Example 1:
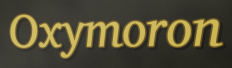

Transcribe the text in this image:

Oxymoron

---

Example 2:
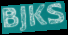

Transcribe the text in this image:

BJKS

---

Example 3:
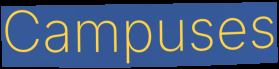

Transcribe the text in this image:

Campuses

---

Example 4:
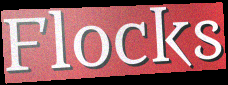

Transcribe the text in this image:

Flocks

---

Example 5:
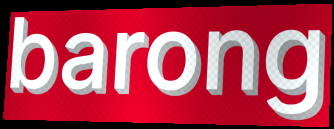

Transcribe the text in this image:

barong